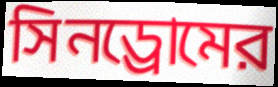
সিনড্রোমের